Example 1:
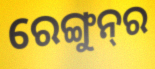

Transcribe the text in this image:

ରେଙ୍ଗୁନ୍‌ର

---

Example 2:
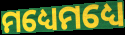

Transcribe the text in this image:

ମଧ୍ୟେମଧ୍ୟେ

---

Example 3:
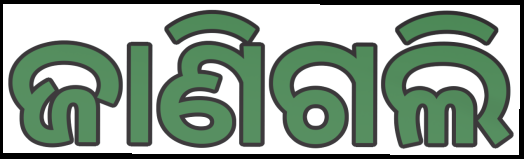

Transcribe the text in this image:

ଜାଣିଗଲି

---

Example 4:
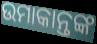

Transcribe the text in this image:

ଉମାକାନ୍ତଙ୍କ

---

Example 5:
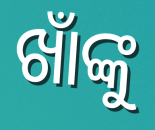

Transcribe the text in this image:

ଖାଁଙ୍କୁ